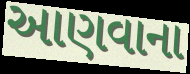
આણવાના